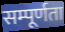
सम्पूर्णता